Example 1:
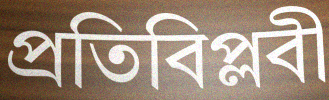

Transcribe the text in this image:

প্রতিবিপ্লবী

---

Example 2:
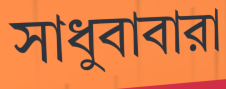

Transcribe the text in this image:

সাধুবাবারা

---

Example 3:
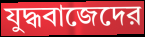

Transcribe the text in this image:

যুদ্ধবাজেদের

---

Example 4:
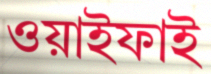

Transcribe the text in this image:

ওয়াইফাই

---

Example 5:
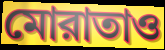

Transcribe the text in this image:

মোরাতাও